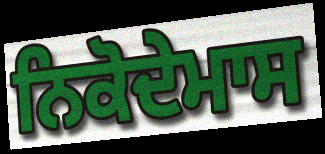
ਨਿਕੋਦੇਮਾਸ